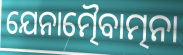
ଯେନାତ୍ମୈବାତ୍ମନା